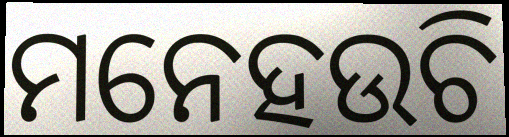
ମନେହଉଚି